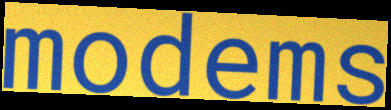
modems